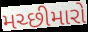
મચ્છીમારો